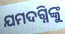
ଯମଦଗ୍ନିଙ୍କୁ